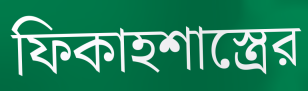
ফিকাহশাস্ত্রের